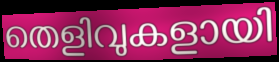
തെളിവുകളായി